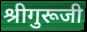
श्रीगुरूजी